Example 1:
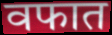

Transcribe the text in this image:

वफात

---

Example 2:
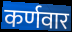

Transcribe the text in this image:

कर्णवार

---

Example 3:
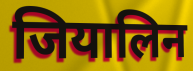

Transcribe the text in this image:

जियालिन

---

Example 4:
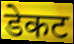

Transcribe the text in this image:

डेकट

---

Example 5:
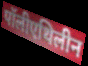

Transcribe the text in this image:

पॉलीएथिलीन